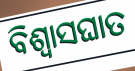
ବିଶ୍ବାସଘାତ